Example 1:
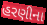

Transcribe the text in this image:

હરણીના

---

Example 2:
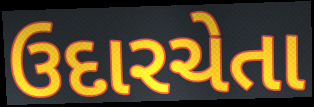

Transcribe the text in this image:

ઉદારચેતા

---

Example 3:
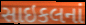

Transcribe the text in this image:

સાઇકલનાં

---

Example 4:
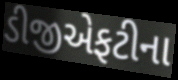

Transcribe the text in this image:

ડીજીએફટીના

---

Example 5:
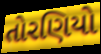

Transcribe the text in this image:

તોરણિયો